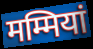
मम्मियां